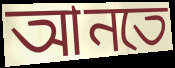
আনতে